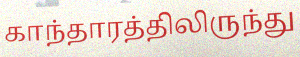
காந்தாரத்திலிருந்து